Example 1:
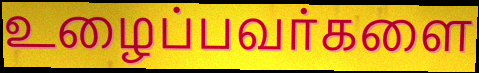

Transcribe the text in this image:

உழைப்பவர்களை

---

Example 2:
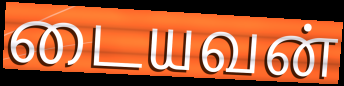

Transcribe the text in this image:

டையவன்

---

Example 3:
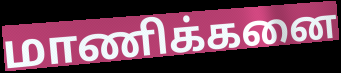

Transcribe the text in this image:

மாணிக்கனை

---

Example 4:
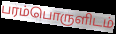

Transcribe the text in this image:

பரம்பொருளிடம்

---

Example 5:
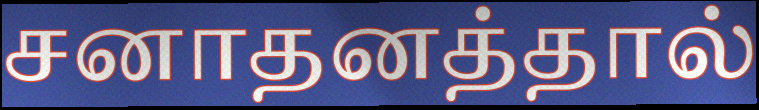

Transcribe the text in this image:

சனாதனத்தால்